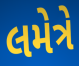
લમેત્રે